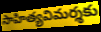
సాహిత్యవిమర్శకు